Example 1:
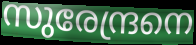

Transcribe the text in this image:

സുരേന്ദ്രനെ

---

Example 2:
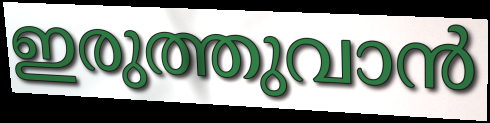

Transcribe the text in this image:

ഇരുത്തുവാൻ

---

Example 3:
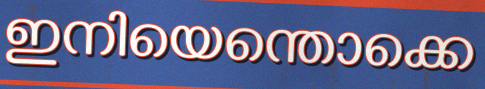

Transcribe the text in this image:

ഇനിയെന്തൊക്കെ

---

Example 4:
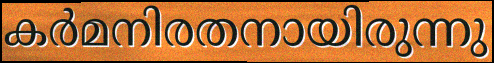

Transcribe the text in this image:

കർമനിരതനായിരുന്നു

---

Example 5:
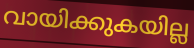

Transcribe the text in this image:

വായിക്കുകയില്ല